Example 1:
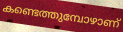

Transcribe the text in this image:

കണ്ടെത്തുമ്പോഴാണ്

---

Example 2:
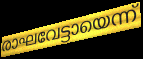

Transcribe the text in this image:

രാഘവേട്ടായെന്ന്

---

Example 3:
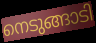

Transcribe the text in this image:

നെടുങ്ങാടി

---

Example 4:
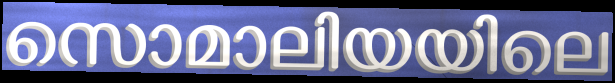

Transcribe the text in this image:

സൊമാലിയയിലെ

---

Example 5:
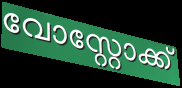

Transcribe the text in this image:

വോസ്റ്റോക്ക്